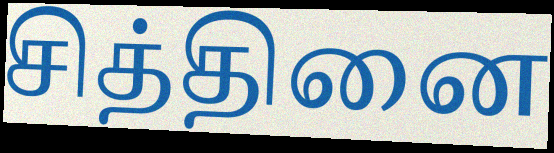
சித்தினை